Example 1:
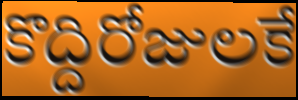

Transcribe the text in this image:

కొద్దిరోజులకే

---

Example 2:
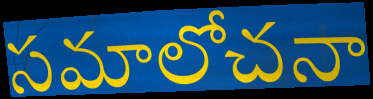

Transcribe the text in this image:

సమాలోచనా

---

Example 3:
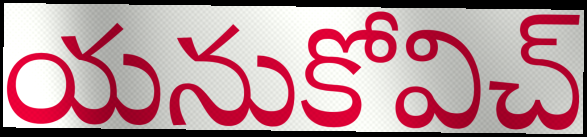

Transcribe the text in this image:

యనుకోవిచ్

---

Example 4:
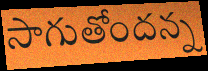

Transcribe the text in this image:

సాగుతోందన్న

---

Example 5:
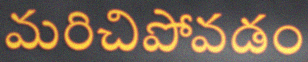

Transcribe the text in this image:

మరిచిపోవడం